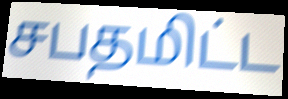
சபதமிட்ட